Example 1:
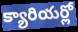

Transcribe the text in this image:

క్యారియర్లో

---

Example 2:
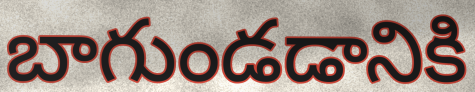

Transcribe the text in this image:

బాగుండడానికి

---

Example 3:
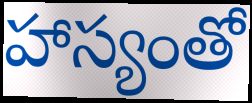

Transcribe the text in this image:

హాస్యంతో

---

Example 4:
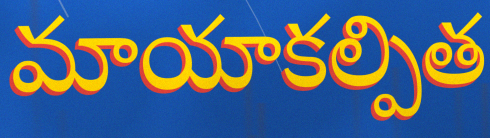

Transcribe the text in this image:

మాయాకల్పిత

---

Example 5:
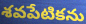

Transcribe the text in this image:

శవపేటికను